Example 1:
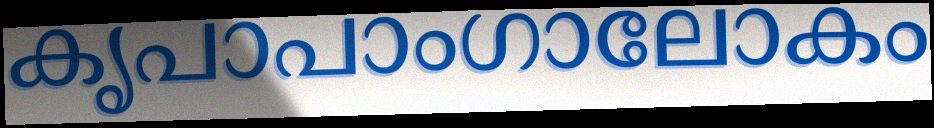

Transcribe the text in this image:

കൃപാപാംഗാലോകം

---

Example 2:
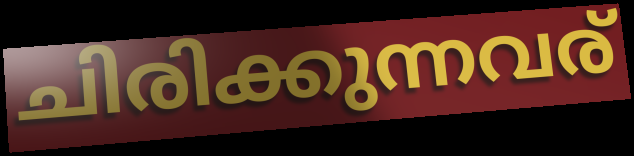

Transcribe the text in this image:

ചിരിക്കുന്നവര്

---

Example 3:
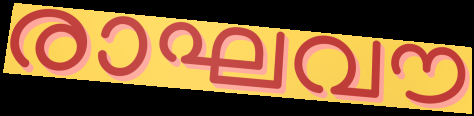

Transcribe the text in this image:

രാഘവൗ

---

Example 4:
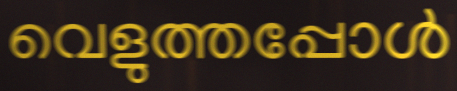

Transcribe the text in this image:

വെളുത്തപ്പോൾ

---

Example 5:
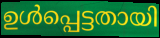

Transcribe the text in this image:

ഉൾപ്പെട്ടതായി